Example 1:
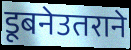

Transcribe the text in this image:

डूबनेउतराने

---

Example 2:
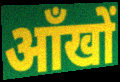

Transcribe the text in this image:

ऑंखों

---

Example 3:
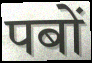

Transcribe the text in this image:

पबों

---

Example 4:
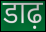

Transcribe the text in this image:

डाढ़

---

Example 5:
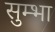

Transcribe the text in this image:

सुम्भा